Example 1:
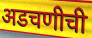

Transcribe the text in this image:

अडचणीची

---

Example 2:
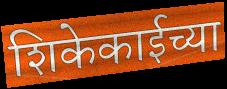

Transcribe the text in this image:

शिकेकाईच्या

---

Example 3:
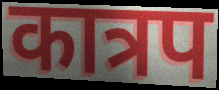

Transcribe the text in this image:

कात्रप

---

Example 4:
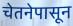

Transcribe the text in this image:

चेतनेपासून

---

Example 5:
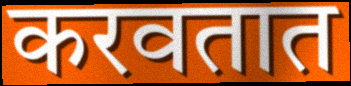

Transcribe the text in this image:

करवतात